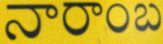
నారాంబ